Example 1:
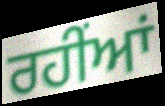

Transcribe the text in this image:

ਰਹੀਂਆਂ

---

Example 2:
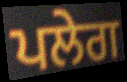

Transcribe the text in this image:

ਪਲੇਗ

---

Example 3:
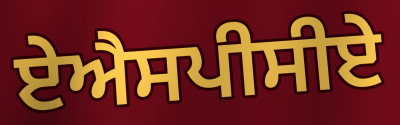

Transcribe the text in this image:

ਏਐਸਪੀਸੀਏ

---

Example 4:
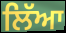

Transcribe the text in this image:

ਲਿੱਆ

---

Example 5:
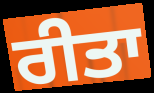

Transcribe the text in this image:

ਰੀਤਾ